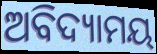
ଅବିଦ୍ୟାମୟ